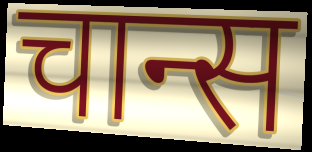
चान्स